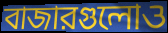
বাজারগুলোও